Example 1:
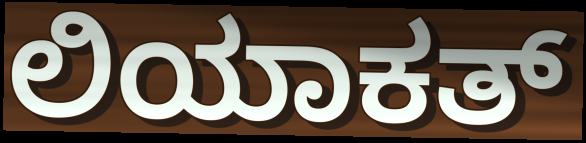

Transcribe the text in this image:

ಲಿಯಾಕತ್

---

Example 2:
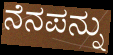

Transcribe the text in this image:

ನೆನಪನ್ನು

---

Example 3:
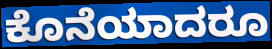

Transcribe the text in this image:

ಕೊನೆಯಾದರೂ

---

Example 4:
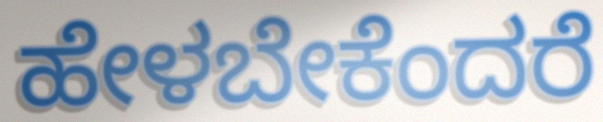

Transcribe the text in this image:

ಹೇಳಬೇಕೆಂದರೆ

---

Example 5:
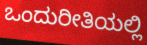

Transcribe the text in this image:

ಒಂದುರೀತಿಯಲ್ಲಿ